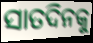
ସାତଦିନକୁ